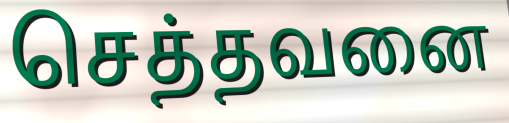
செத்தவனை